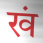
खं